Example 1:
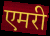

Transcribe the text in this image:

एमरी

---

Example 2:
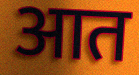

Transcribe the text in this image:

आत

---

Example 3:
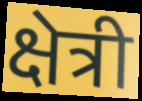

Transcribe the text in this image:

क्षेत्री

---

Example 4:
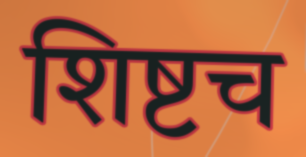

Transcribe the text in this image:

शिष्टच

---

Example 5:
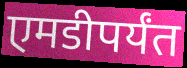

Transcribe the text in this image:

एमडीपर्यंत